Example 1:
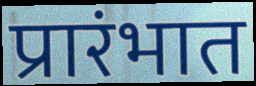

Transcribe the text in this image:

प्रारंभात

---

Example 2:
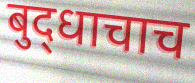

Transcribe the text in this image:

बुद्धाचाच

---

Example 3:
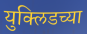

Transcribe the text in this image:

युक्लिडच्या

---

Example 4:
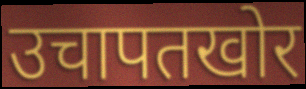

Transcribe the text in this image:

उचापतखोर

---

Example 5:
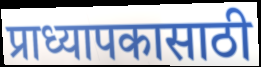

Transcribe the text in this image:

प्राध्यापकासाठी